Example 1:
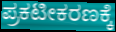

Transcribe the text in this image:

ಪ್ರಕಟೀಕರಣಕ್ಕೆ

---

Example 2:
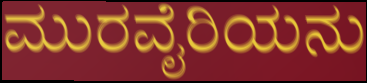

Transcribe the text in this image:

ಮುರವೈರಿಯನು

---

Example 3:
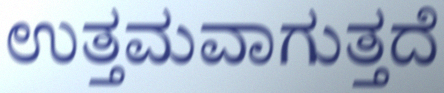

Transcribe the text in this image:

ಉತ್ತಮವಾಗುತ್ತದೆ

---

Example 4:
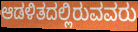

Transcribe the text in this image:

ಆಡಳಿತದಲ್ಲಿರುವವರು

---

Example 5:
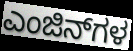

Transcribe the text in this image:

ಎಂಜಿನ್‌ಗಳ